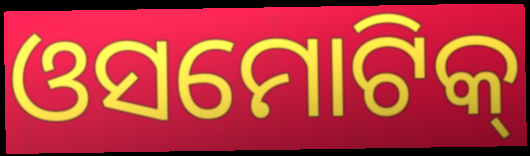
ଓସମୋଟିକ୍